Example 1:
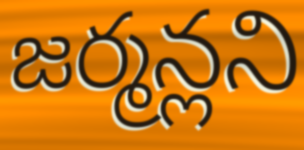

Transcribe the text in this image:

జర్మన్లని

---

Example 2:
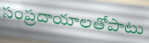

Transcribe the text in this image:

సంప్రదాయాలతోపాటు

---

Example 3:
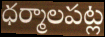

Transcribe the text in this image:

ధర్మాలపట్ల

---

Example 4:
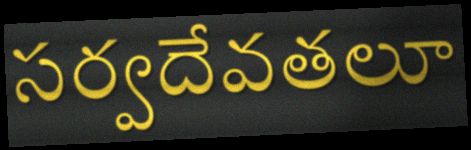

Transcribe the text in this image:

సర్వదేవతలూ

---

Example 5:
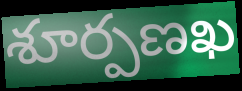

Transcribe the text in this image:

శూర్పణఖ